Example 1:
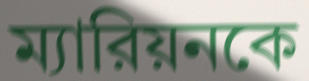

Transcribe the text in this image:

ম্যারিয়নকে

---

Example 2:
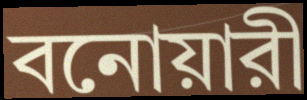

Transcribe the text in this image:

বনোয়ারী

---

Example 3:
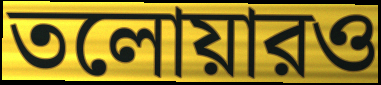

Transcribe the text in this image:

তলোয়ারও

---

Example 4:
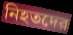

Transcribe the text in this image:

নিহতদের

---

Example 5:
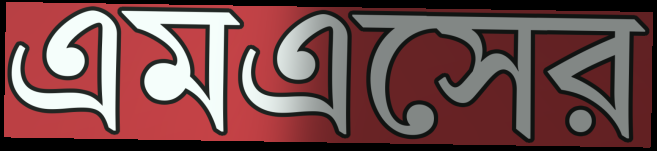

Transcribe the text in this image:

এমএসের